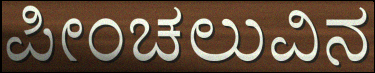
ಪೀಂಚಲುವಿನ